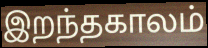
இறந்தகாலம்